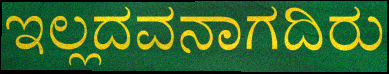
ಇಲ್ಲದವನಾಗದಿರು